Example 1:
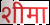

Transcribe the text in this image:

शीमा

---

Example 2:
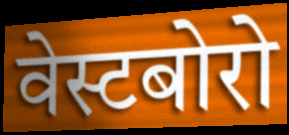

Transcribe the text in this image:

वेस्टबोरो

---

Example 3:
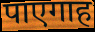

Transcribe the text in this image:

पाएगाह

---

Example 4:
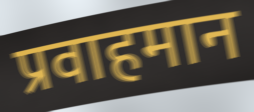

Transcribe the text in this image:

प्रवाहमान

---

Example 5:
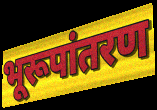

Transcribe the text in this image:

भूरूपांतरण